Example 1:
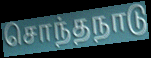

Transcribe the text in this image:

சொந்தநாடு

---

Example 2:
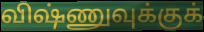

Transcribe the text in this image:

விஷ்ணுவுக்குக்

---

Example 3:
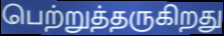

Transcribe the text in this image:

பெற்றுத்தருகிறது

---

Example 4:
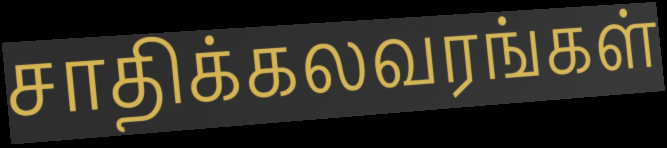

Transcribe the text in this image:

சாதிக்கலவரங்கள்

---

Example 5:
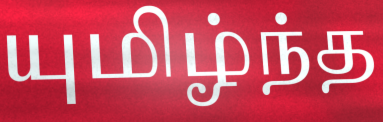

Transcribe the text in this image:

யுமிழ்ந்த